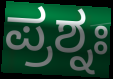
ಪ್ರಶ್ನಃ